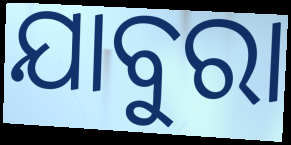
ଯାବୁରା